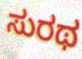
ಸುರಥ